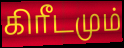
கிரீடமும்